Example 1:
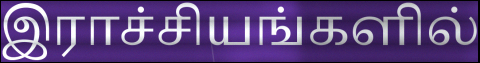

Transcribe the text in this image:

இராச்சியங்களில்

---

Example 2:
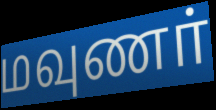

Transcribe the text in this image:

மவுணர்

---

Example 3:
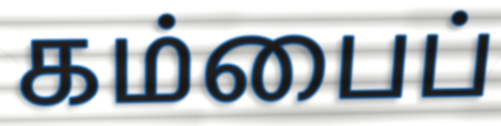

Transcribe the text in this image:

கம்பைப்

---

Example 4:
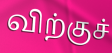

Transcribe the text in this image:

விற்குச்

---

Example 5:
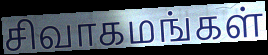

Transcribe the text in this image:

சிவாகமங்கள்